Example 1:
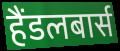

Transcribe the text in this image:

हैंडलबार्स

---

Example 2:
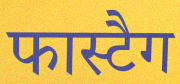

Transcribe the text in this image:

फास्टैग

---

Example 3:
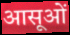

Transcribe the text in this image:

आसूओं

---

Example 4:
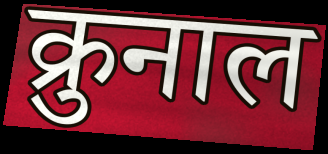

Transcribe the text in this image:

क्रुनाल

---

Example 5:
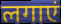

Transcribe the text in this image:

लगाएं